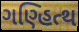
ગણ્હિત્થ